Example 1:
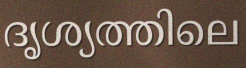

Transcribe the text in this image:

ദൃശ്യത്തിലെ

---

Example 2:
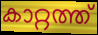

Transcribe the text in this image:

കാറ്റത്ത്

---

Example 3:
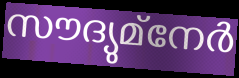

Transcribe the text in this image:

സൗദ്യുമ്നേർ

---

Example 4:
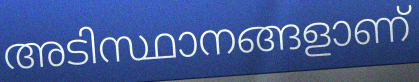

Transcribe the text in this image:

അടിസ്ഥാനങ്ങളാണ്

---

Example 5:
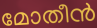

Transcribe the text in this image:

മോതീൻ